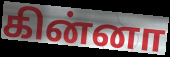
கின்னா